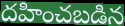
దహించబడిన